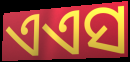
ଏଏସ